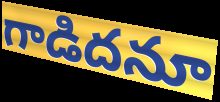
గాడిదనూ